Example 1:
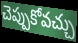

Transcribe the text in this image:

చెప్పుకోవచ్చు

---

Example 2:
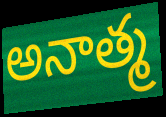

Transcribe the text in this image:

అనాత్మ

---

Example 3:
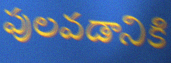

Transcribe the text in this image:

పులవడానికి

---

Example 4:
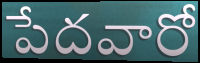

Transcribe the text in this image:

పేదవారో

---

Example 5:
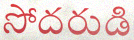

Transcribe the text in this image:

సోదరుడి